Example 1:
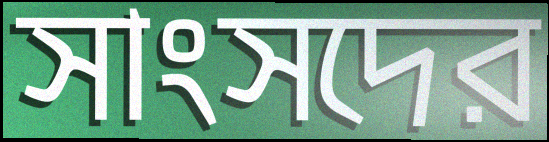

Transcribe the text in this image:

সাংসদের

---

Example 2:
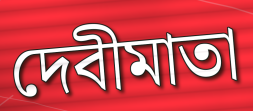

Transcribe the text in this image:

দেবীমাতা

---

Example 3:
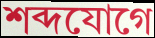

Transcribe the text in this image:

শব্দযোগে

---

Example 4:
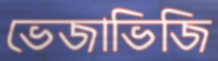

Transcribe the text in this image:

ভেজাভিজি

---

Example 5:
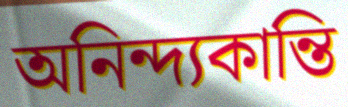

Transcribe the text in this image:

অনিন্দ্যকান্তি